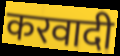
करवादी